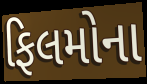
ફિલમોના